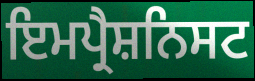
ਇਮਪ੍ਰੈਸ਼ਨਿਸਟ